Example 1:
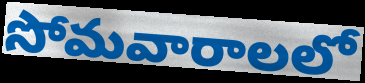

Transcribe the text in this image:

సోమవారాలలో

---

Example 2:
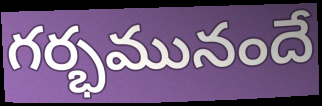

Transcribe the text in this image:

గర్భమునందే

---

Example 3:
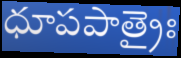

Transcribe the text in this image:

ధూపపాత్రైః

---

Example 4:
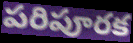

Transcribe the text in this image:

పరిపూరక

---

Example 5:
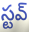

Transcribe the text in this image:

స్టవ్